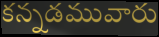
కన్నడమువారు